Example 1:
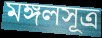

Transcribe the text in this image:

মঙ্গলসূত্র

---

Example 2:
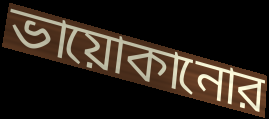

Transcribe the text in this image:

ভায়োকানোর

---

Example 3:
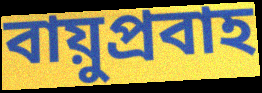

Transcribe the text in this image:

বায়ুপ্রবাহ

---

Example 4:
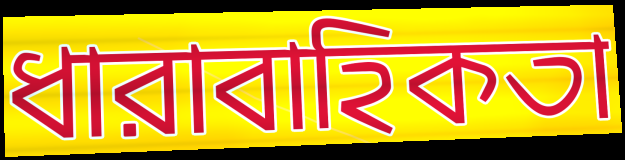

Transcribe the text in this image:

ধারাবাহিকতা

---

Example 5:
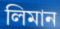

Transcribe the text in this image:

লিমান